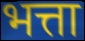
भत्ता